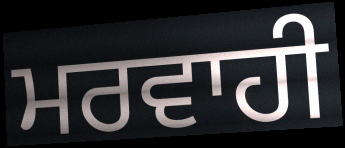
ਮਰਵਾਹੀ